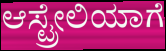
ಆಸ್ಟ್ರೇಲಿಯಾಗೆ